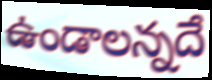
ఉండాలన్నదే